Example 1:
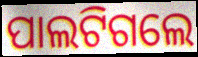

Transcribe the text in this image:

ପାଲଟିଗଲେ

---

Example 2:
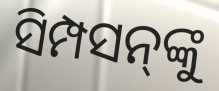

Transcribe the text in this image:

ସିମ୍ପସନ୍‍ଙ୍କୁ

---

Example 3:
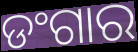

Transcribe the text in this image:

ଡଂଗାର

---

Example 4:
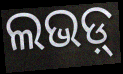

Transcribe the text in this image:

ଲଭଡ଼୍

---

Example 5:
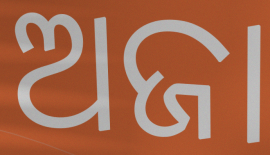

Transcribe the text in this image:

ଅଜା